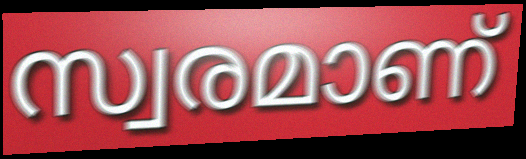
സ്വരമാണ്